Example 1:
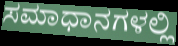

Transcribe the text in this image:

ಸಮಾಧಾನಗಳಲ್ಲಿ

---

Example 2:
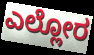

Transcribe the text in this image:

ಎಲ್ಲೋರ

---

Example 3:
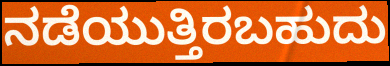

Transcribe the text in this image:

ನಡೆಯುತ್ತಿರಬಹುದು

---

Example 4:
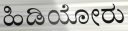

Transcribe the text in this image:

ಹಿಡಿಯೋರು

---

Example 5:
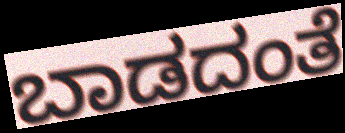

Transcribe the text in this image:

ಬಾಡದಂತೆ